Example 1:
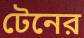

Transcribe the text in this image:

টেনের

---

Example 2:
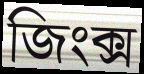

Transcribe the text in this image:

জিংক্স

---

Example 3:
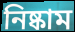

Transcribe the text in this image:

নিষ্কাম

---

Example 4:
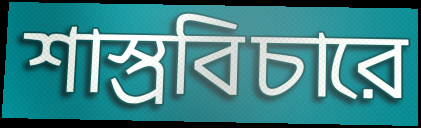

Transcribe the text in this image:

শাস্ত্রবিচারে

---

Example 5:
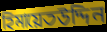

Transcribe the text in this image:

হিমায়েতউদ্দিন